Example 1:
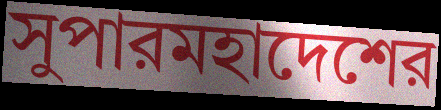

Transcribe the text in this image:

সুপারমহাদেশের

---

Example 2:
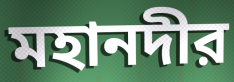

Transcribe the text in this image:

মহানদীর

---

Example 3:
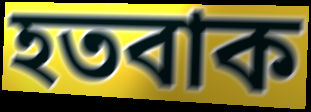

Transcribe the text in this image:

হতবাক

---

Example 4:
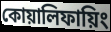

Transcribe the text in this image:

কোয়ালিফায়িং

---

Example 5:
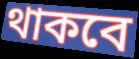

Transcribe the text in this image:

থাকবে